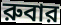
রুবার